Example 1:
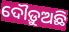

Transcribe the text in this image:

ଦୌଡ଼ୁଅଛି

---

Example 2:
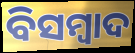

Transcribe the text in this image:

ବିସମ୍ୱାଦ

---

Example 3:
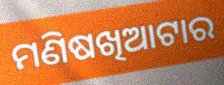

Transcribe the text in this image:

ମଣିଷଖିଆଟାର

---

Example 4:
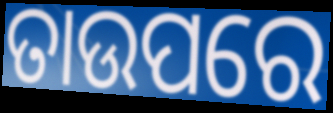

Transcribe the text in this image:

ତାଉପରେ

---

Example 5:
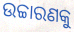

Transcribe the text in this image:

ଉଚ୍ଚାରଣକୁ